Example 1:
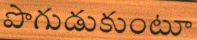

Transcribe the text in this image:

పొగుడుకుంటూ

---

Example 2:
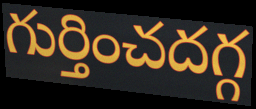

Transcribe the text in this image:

గుర్తించదగ్గ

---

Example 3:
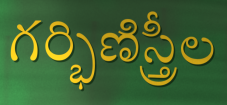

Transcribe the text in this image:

గర్భిణిస్త్రీల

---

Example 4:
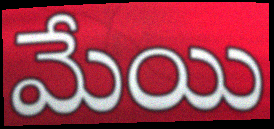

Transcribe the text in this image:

మేయి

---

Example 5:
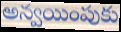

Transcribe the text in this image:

అన్వయింపుకు